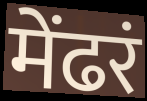
मेंढरं